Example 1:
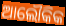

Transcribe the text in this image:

ଆଲୌକିକ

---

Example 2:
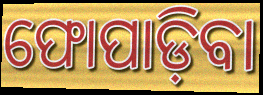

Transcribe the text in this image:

ଫୋପାଡ଼ିବା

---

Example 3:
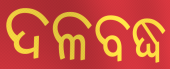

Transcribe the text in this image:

ଦଳବଦ୍ଧ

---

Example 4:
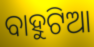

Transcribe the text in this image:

ବାହୁଟିଆ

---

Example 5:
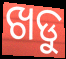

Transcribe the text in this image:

ଖଡୁ